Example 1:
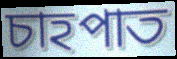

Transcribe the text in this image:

চাহপাত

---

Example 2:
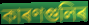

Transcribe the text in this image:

কাৰণগুলিৰ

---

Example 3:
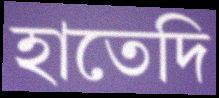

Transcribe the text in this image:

হাতেদি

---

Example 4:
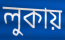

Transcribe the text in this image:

লুকায়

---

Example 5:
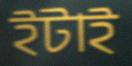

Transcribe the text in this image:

ইটাই